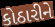
કોઠારીને